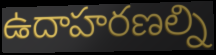
ఉదాహరణల్ని